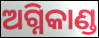
ଅଗ୍ନିକାଣ୍ଡ